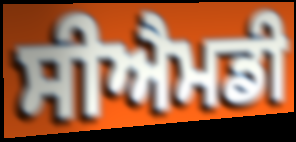
ਸੀਐਮਡੀ